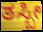
ತಸ್ಬೀ